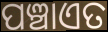
ପଞ୍ଚାଏତ